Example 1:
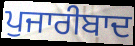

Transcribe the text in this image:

ਪੁਜਾਰੀਬਾਦ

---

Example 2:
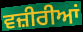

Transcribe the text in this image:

ਵਜ਼ੀਰੀਆਂ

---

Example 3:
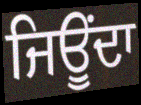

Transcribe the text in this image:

ਜਿਊੂਂਦਾ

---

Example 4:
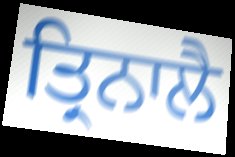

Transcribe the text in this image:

ਤ੍ਰਿਨਾਲੈ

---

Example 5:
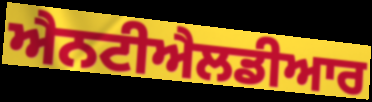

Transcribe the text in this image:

ਐਨਟੀਐਲਡੀਆਰ